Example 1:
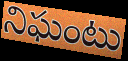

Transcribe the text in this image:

నిఘంటు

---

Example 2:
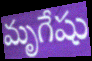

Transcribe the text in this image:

మృగేషు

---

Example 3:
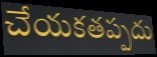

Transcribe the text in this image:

చేయకతప్పదు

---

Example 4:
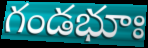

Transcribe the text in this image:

గండభూః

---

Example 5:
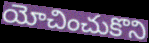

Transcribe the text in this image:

యోచించుకొని